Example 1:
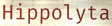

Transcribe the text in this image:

Hippolyta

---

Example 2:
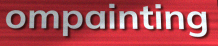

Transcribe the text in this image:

ompainting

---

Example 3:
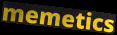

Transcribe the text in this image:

memetics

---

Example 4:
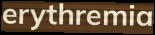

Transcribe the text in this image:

erythremia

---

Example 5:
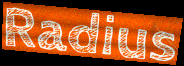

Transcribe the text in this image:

Radius